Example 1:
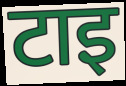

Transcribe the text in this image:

टाइ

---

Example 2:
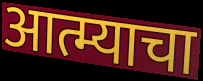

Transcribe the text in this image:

आत्म्याचा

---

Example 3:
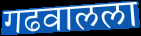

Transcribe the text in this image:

गढवालला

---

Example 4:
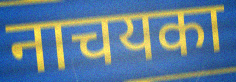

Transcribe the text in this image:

नाचयका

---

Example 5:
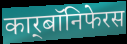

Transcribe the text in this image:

कार्बॉनिफेरस